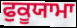
ਫੁਕੂਯਾਮਾ